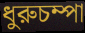
ধুরুচম্পা